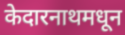
केदारनाथमधून